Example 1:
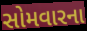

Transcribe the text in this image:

સોમવારના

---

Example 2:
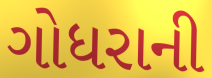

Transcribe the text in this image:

ગોધરાની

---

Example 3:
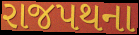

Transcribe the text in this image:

રાજપથના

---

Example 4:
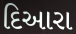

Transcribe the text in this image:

દિઆરા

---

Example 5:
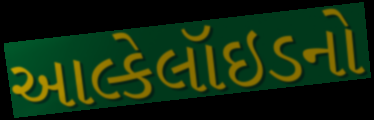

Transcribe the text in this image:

આલ્કેલૉઇડનો